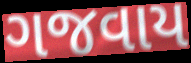
ગજવાય